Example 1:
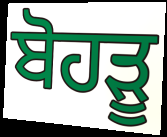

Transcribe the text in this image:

ਬੋਹੜੂ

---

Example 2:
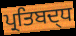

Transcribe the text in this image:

ਪ੍ਰਤਿਬਦ੍ਧ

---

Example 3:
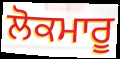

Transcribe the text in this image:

ਲੋਕਮਾਰੂ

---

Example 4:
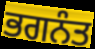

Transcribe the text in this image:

ਭਗਨੰਤ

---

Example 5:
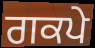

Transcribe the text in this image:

ਗਕਪੇ